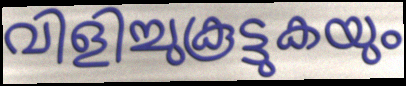
വിളിച്ചുകൂട്ടുകയും